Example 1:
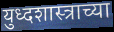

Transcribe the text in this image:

युध्दशास्त्राच्या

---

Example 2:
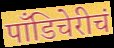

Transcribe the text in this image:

पाँडिचेरीचं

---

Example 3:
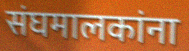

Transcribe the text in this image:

संघमालकांना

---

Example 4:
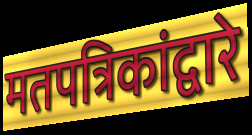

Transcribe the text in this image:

मतपत्रिकांद्वारे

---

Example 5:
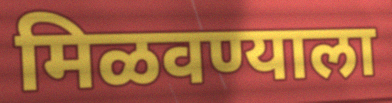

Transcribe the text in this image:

मिळवण्याला